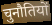
चुनौतियों